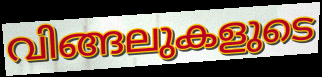
വിങ്ങലുകളുടെ